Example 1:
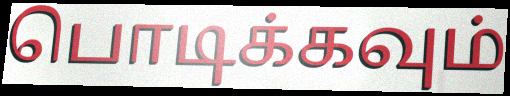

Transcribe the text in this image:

பொடிக்கவும்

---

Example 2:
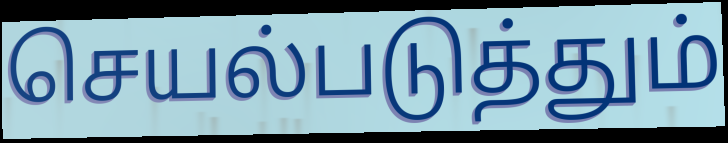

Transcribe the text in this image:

செயல்படுத்தும்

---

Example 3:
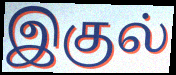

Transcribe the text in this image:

இகுல்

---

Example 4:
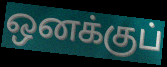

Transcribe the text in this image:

ஒனக்குப்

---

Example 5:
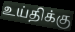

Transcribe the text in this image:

உய்திக்கு